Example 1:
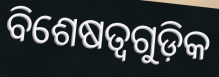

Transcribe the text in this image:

ବିଶେଷତ୍ୱଗୁଡ଼ିକ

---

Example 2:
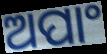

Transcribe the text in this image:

ଅପାଂ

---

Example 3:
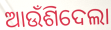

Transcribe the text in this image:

ଆଉଁଶିଦେଲା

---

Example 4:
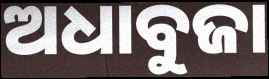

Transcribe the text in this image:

ଅଧାବୁଜା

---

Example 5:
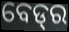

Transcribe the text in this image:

ବେଡ୍‍ର